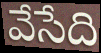
వేసేది